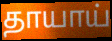
தாயாய்